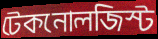
টেকনোলজিস্ট